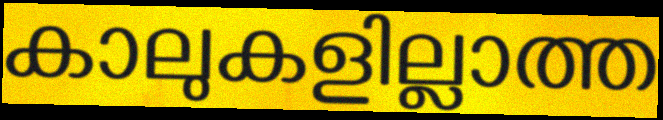
കാലുകളില്ലാത്ത